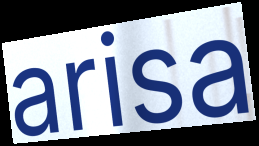
arisa